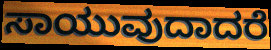
ಸಾಯುವುದಾದರೆ